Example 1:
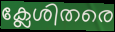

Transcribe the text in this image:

ക്ലേശിതരെ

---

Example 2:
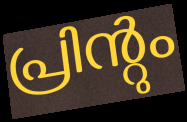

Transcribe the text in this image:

പ്രിന്റും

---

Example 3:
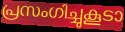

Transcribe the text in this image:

പ്രസംഗിച്ചുകൂടാ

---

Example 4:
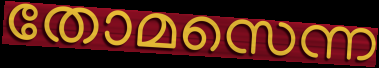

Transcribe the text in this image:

തോമസെന്ന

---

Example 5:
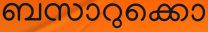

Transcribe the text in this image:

ബസാറുക്കൊ